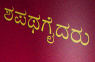
ಶಪಥಗೈದರು